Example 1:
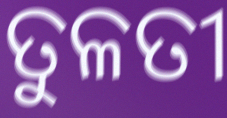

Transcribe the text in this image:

ତୁଳତୀ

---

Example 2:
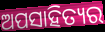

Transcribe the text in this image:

ଅପସାହିତ୍ୟର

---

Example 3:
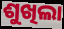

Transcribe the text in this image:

ଶୁଖିଲା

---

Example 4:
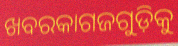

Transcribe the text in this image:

ଖବରକାଗଜଗୁଡ଼ିକୁ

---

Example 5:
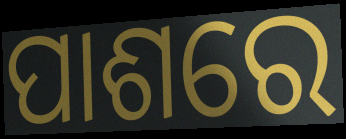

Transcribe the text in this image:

ପାଶରେ